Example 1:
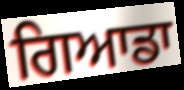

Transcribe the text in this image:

ਗਿਆਡਾ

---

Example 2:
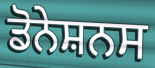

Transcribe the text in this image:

ਡੋਨੇਸ਼ਨਸ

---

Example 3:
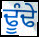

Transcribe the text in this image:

ਢੂੰਢੇ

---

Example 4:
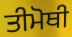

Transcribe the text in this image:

ਤੀਮੋਥੀ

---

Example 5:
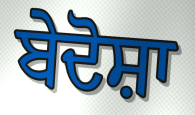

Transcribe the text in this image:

ਬੇਦੋਸ਼ਾ